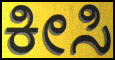
ಕೀಸಿ